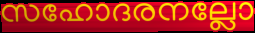
സഹോദരനല്ലോ